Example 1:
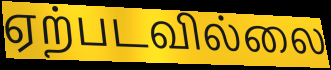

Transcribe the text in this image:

ஏற்படவில்லை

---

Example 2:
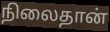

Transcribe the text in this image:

நிலைதான்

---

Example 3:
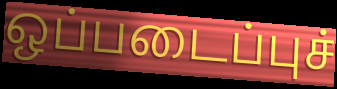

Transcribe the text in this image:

ஒப்படைப்புச்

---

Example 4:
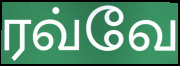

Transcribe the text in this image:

ரவ்வே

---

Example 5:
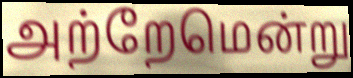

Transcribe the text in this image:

அற்றேமென்று